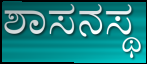
ಶಾಸನಸ್ಥ